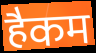
हैकम